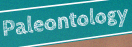
Paleontology